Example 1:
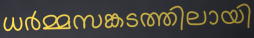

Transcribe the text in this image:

ധർമ്മസങ്കടത്തിലായി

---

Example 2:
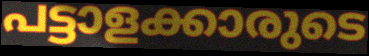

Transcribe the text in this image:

പട്ടാളക്കാരുടെ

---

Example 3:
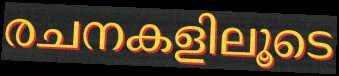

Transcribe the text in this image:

രചനകളിലൂടെ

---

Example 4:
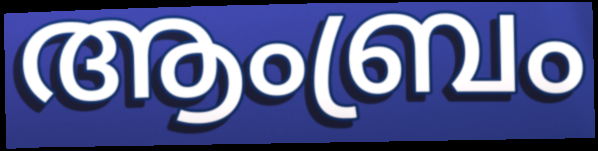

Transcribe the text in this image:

ആംബ്രം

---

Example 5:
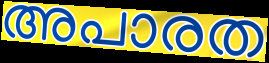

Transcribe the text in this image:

അപാരത